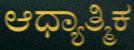
ಆಧ್ಯಾತ್ಮಿಕ